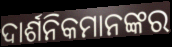
ଦାର୍ଶନିକମାନଙ୍କର